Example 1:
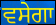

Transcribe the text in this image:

ਵਸੇਗਾ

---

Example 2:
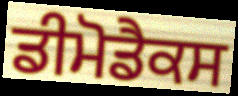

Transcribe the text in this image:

ਡੀਮੋਡੈਕਸ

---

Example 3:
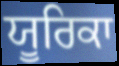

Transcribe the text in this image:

ਯੂਰਿਕਾ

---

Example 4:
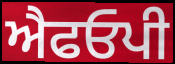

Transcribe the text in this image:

ਐਫਓਪੀ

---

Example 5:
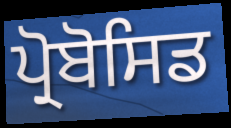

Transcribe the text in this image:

ਪ੍ਰੋਬੋਸਿਡ